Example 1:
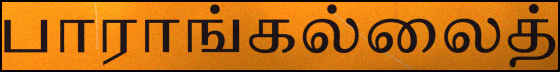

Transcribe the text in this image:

பாராங்கல்லைத்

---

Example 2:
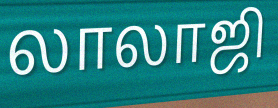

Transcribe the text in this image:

லாலாஜி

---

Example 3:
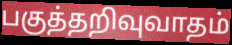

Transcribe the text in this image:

பகுத்தறிவுவாதம்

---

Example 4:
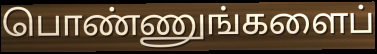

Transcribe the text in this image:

பொண்ணுங்களைப்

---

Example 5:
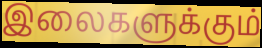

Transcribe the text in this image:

இலைகளுக்கும்